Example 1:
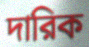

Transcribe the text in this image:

দারিক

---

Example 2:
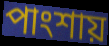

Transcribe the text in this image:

পাংশায়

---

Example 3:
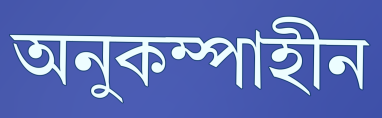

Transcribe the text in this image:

অনুকম্পাহীন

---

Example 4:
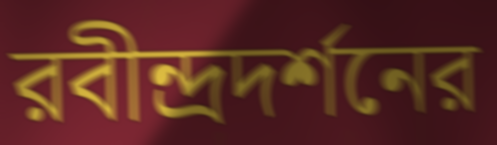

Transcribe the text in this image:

রবীন্দ্রদর্শনের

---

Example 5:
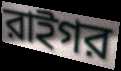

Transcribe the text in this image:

রাইগর